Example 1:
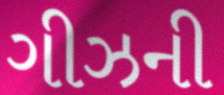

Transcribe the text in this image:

ગીઝની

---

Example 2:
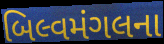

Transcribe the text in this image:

બિલ્વમંગલના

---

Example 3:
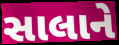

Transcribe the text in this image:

સાલાને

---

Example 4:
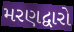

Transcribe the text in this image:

મરણદ્વારો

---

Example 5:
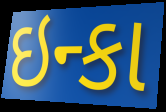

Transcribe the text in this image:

ઇન્કા